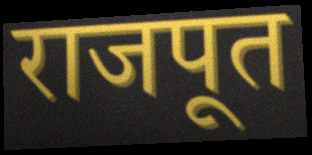
राजपूत